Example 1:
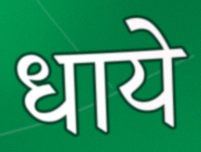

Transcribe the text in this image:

धाये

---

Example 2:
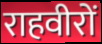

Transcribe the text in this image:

राहवीरों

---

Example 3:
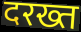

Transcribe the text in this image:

दरख्त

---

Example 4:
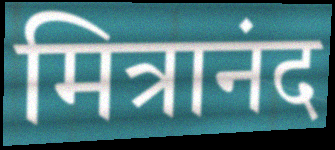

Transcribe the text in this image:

मित्रानंद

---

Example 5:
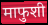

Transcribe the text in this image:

माफुशी